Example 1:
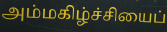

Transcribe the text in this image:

அம்மகிழ்ச்சியைப்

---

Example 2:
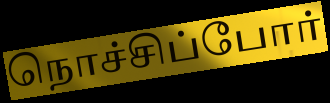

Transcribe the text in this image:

நொச்சிப்போர்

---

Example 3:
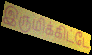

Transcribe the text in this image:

இருமிக்கிட்டே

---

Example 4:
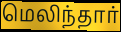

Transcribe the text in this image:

மெலிந்தார்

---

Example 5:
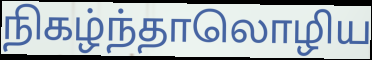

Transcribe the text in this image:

நிகழ்ந்தாலொழிய